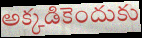
అక్కడికెందుకు